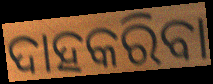
ଦାହକରିବା